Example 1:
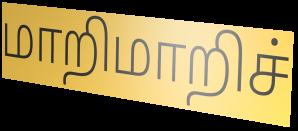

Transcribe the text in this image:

மாறிமாறிச்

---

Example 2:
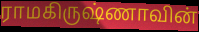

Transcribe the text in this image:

ராமகிருஷ்ணாவின்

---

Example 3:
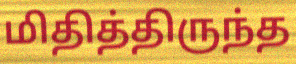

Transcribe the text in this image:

மிதித்திருந்த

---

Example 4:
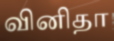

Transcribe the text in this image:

வினிதா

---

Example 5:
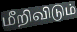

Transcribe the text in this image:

மீறிவிடும்